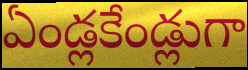
ఏండ్లకేండ్లుగా